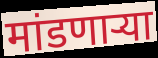
मांडणाऱ्या